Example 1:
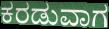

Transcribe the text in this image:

ಕರಡುವಾಗ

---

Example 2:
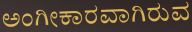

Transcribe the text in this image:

ಅಂಗೀಕಾರವಾಗಿರುವ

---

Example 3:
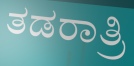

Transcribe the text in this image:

ತಡರಾತ್ರಿ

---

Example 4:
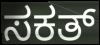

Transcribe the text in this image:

ಸಕತ್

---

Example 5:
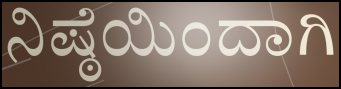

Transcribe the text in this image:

ನಿಷ್ಠೆಯಿಂದಾಗಿ